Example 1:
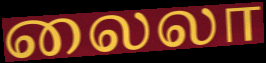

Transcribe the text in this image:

லைலா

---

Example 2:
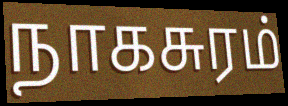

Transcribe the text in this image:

நாகசுரம்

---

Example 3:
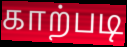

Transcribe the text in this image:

காற்படி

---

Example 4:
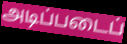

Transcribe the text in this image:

அடிப்படைப்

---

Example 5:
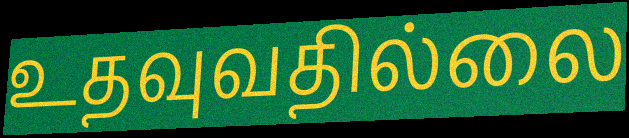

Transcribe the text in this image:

உதவுவதில்லை